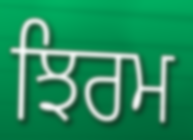
ਝਿਰਮ